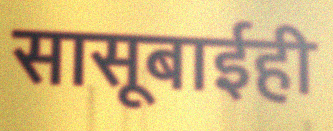
सासूबाईही